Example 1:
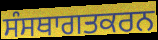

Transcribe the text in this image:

ਸੰਸਥਾਗਤਕਰਨ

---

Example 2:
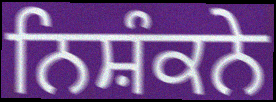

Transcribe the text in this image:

ਨਿਸ਼ੰਕਨੇ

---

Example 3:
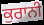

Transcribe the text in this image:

ਕੁਰਾਨੀ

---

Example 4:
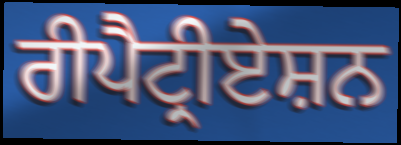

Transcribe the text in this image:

ਰੀਪੈਟ੍ਰੀਏਸ਼ਨ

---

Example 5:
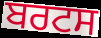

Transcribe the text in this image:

ਬਰਟਸ